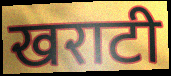
खराटी